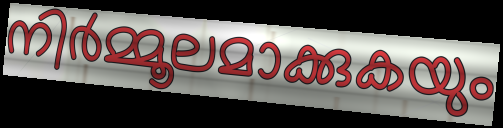
നിർമ്മൂലമാക്കുകയും